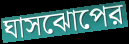
ঘাসঝোপের